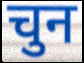
चुन